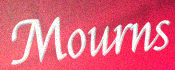
Mourns